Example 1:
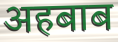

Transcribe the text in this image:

अहबाब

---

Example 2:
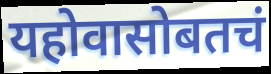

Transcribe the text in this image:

यहोवासोबतचं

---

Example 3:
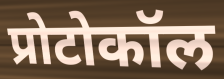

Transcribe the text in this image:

प्रोटोकॉल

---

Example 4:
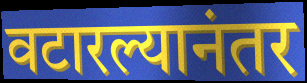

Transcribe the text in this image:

वटारल्यानंतर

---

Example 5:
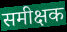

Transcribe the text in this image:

समीक्षक